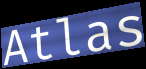
Atlas